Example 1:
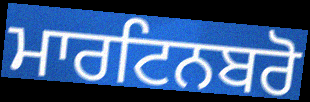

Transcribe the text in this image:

ਮਾਰਟਿਨਬਰੋ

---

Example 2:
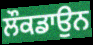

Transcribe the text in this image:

ਲੌਕਡਾਉਨ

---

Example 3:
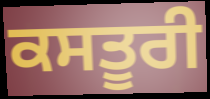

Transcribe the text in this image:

ਕਸਤੂਰੀ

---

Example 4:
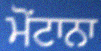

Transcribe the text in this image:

ਮੋਂਟਾਨਾ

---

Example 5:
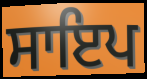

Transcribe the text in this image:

ਸਾਇਪ